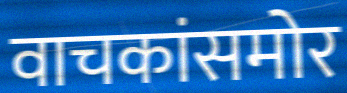
वाचकांसमोर